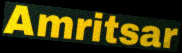
Amritsar